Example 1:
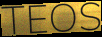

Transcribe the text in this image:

TEOS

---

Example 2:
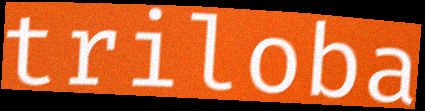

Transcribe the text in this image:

triloba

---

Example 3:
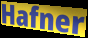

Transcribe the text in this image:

Hafner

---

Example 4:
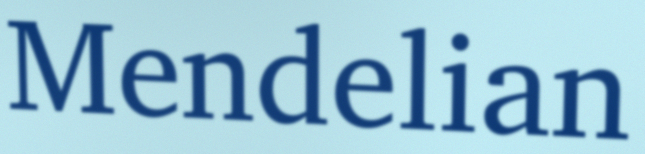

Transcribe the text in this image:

Mendelian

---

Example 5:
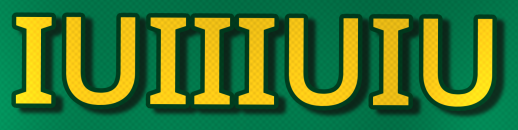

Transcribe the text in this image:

IUIIIUIU